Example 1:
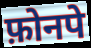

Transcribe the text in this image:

फ़ोनपे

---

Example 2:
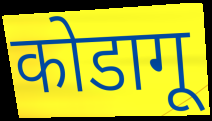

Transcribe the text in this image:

कोडागू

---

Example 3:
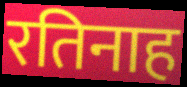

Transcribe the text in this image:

रतिनाह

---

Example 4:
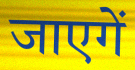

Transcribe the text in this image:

जाएगें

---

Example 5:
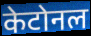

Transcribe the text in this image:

केटोनल